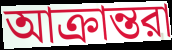
আক্রান্তরা